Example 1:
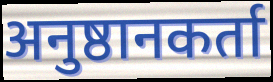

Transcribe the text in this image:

अनुष्ठानकर्ता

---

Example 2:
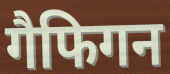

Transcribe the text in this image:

गैफिगन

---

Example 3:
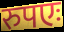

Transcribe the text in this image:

रुपएः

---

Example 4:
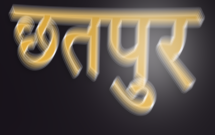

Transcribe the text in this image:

छतपुर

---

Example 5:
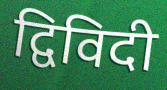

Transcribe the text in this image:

द्विविदी